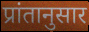
प्रांतानुसार